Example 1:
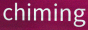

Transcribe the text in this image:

chiming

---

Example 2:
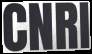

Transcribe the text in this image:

CNRI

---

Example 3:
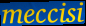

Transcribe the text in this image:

meccisi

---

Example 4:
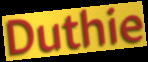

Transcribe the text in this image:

Duthie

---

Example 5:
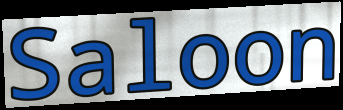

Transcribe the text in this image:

Saloon